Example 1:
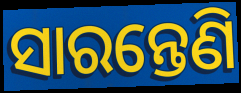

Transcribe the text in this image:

ସାରନ୍ତେଣି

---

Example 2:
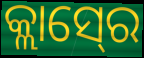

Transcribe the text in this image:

କ୍ଲାସ୍‍ରେ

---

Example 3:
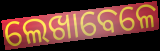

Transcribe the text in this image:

ଲେଖାବେଳେ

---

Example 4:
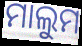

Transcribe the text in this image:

ମାଲୁମ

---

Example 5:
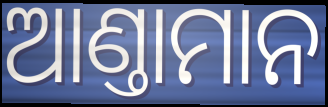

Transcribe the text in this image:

ଆଣ୍ତାମାନ